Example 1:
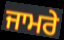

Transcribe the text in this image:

ਜਾਮਰੇ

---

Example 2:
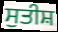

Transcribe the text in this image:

ਸੁਤੀਸ਼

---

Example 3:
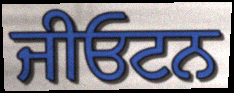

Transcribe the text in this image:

ਜੀਓਟਨ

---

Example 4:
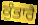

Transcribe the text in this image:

ਕੁੰਭਾਰੈ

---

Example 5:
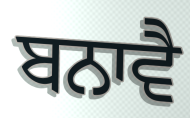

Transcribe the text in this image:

ਬਨਾਵੈ